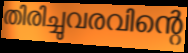
തിരിച്ചുവരവിന്റെ